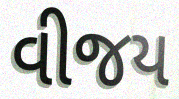
વીજય